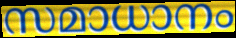
സമാധാനം